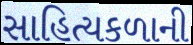
સાહિત્યકળાની